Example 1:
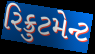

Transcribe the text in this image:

રિક્રુટમેન્ટ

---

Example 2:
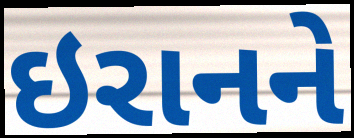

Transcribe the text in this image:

ઇરાનને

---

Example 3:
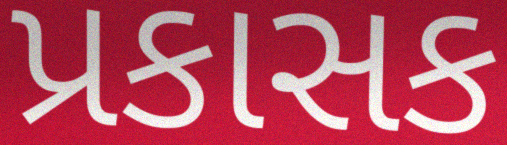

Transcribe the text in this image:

પ્રકાસક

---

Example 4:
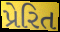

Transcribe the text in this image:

પ્રેરિત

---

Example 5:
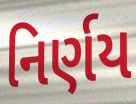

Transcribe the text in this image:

નિર્ણય